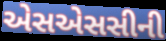
એસએસસીની